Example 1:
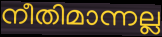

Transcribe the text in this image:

നീതിമാന്നല്ല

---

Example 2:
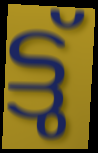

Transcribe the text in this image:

ട്ടു്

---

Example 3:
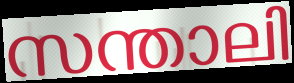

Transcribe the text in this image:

സന്താലി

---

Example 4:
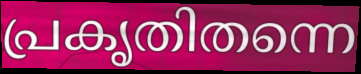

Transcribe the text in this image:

പ്രകൃതിതന്നെ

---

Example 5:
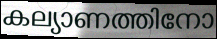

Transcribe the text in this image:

കല്യാണത്തിനോ